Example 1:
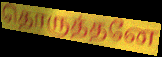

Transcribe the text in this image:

தொருத்தனே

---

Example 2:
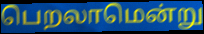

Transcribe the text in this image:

பெறலாமென்று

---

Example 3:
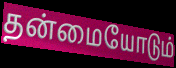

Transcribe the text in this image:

தன்மையோடும்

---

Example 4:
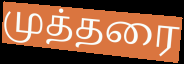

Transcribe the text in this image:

முத்தரை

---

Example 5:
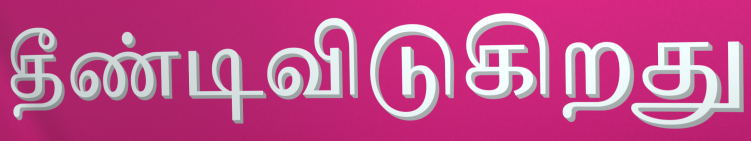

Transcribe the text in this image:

தீண்டிவிடுகிறது